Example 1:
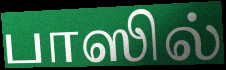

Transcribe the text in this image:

பாஸில்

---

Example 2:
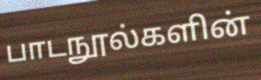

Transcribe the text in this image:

பாடநூல்களின்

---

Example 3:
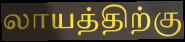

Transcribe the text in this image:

லாயத்திற்கு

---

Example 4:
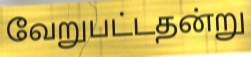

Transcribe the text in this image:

வேறுபட்டதன்று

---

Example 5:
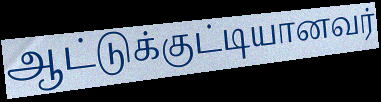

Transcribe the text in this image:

ஆட்டுக்குட்டியானவர்